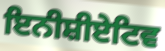
ਇਨੀਸ਼ੀਏਟਿਵ